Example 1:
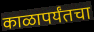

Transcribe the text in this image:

काळापर्यंतचा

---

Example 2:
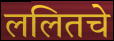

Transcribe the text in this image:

ललितचे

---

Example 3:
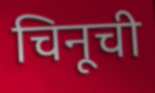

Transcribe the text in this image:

चिनूची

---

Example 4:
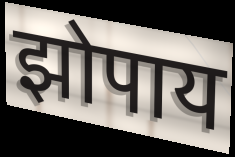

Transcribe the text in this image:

झोपाय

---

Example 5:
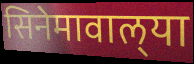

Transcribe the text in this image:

सिनेमावाल्या